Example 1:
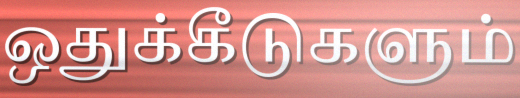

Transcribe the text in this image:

ஒதுக்கீடுகளும்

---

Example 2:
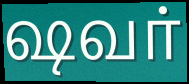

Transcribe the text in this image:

ஷவர்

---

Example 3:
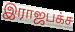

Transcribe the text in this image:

இராஜபக்ச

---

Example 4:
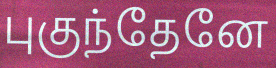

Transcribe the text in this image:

புகுந்தேனே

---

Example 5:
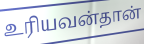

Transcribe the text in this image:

உரியவன்தான்